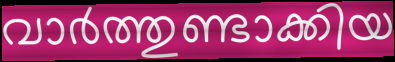
വാർത്തുണ്ടാക്കിയ